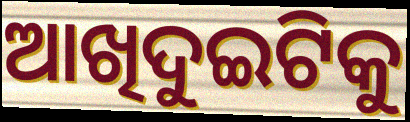
ଆଖିଦୁଇଟିକୁ